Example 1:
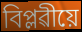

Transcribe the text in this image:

বিপ্লৱীয়ে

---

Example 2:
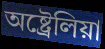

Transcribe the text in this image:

অষ্ট্ৰেলিয়া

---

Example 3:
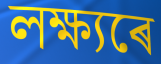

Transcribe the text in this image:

লক্ষ্যৰে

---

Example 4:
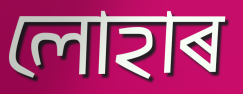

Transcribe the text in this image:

লোহাৰ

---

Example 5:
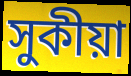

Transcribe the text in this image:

সুকীয়া